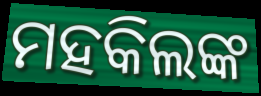
ମହକିଲଙ୍କ